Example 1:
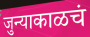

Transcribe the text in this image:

जुन्याकाळचं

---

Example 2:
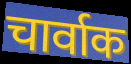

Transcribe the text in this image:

चार्वाक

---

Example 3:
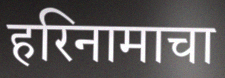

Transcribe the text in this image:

हरिनामाचा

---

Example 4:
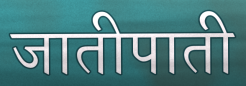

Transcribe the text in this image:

जातीपाती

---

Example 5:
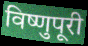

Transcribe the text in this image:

विष्णुपूरी